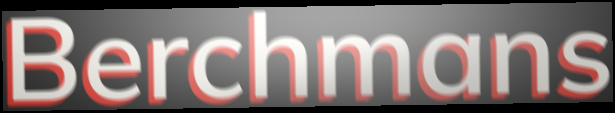
Berchmans